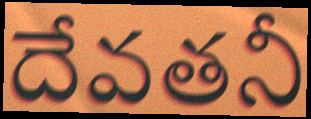
దేవతనీ